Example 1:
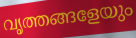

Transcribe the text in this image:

വൃത്തങ്ങളേയും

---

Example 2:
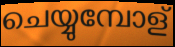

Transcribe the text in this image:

ചെയ്യുമ്പോള്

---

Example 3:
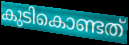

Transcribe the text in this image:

കുടികൊണ്ടത്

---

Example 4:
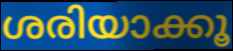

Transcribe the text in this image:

ശരിയാക്കൂ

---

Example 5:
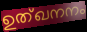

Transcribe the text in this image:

ഉത്ഖനനം